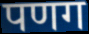
पणग